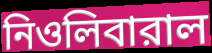
নিওলিবারাল